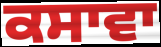
ਕਸਾਵਾ